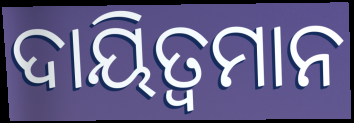
ଦାୟିତ୍ୱମାନ